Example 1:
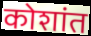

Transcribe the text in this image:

कोशांत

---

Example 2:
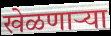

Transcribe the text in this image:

खेळणाऱ्या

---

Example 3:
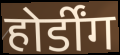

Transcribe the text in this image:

होर्डींग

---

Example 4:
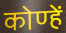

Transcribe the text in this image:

कोण्हें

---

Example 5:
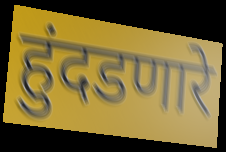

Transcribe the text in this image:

हुंदडणारे